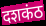
दशकंठ